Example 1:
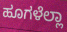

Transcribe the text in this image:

ಹೂಗಳೆಲ್ಲಾ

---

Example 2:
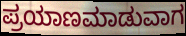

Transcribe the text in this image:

ಪ್ರಯಾಣಮಾಡುವಾಗ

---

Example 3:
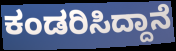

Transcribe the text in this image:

ಕಂಡರಿಸಿದ್ದಾನೆ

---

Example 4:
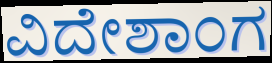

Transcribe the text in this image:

ವಿದೇಶಾಂಗ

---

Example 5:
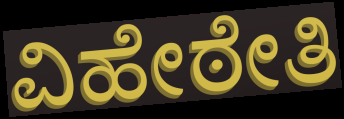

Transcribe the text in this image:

ವಿಹೇಠೇತಿ